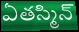
ఏతస్మిన్